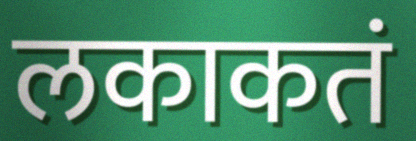
लकाकतं